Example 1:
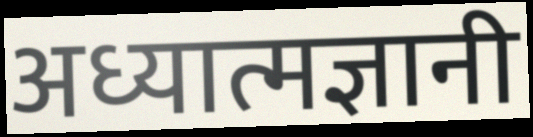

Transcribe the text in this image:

अध्यात्मज्ञानी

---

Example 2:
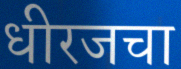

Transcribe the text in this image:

धीरजचा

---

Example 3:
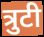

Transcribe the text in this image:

त्रुटी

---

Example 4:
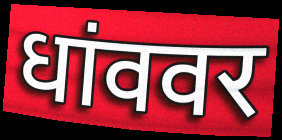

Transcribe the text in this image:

धांववर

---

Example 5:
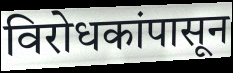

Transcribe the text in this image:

विरोधकांपासून